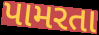
પામરતા